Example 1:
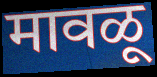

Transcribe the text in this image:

मावळू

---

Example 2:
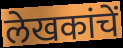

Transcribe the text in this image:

लेखकांचें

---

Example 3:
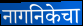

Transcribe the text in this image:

नागनिकेचा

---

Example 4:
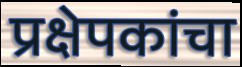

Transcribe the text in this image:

प्रक्षेपकांचा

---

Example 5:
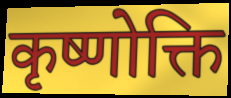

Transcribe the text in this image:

कृष्णोक्ति